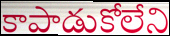
కాపాడుకోలేని